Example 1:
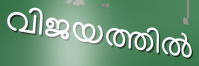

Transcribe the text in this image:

വിജയത്തിൽ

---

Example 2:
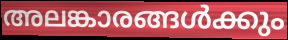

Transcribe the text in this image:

അലങ്കാരങ്ങൾക്കും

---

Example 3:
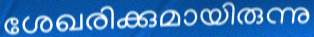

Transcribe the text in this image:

ശേഖരിക്കുമായിരുന്നു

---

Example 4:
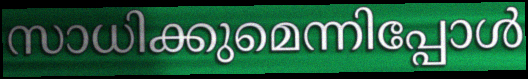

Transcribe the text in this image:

സാധിക്കുമെന്നിപ്പോൾ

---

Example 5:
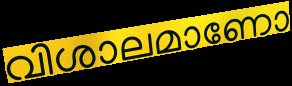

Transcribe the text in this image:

വിശാലമാണോ